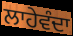
ਲਾਹੇਵੰਦਾ